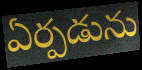
ఏర్పడును